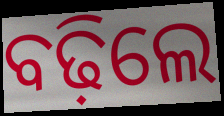
ବଢ଼ିଲେ